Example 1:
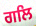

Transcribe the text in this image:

ਗਲਿ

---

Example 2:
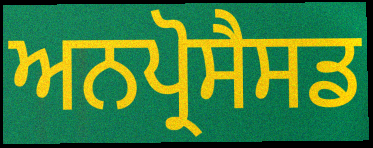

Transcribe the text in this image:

ਅਨਪ੍ਰੋਸੈਸਡ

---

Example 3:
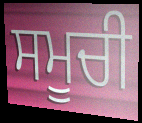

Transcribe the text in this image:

ਸਮੂਚੀ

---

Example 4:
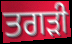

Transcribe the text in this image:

ਤਗੜੀ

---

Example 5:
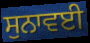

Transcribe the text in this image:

ਸੁਨਾਵਈ